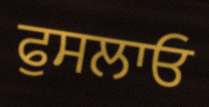
ਫੁਸਲਾਓ